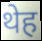
थेह